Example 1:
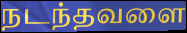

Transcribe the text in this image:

நடந்தவளை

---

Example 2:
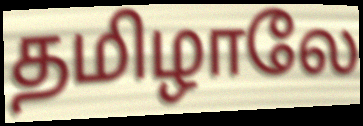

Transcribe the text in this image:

தமிழாலே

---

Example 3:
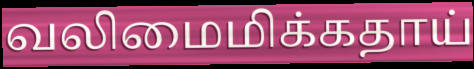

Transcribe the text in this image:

வலிமைமிக்கதாய்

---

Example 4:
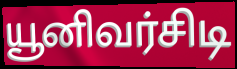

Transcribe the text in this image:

யூனிவர்சிடி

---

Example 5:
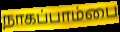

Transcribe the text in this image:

நாகப்பாம்பை